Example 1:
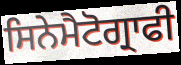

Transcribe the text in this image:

ਸਿਨੇਮੈਟੋਗ੍ਰਾਫੀ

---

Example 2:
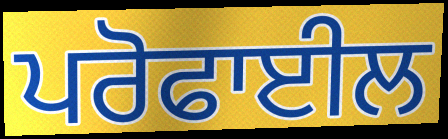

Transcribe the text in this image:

ਪਰੋਫਾਈਲ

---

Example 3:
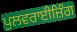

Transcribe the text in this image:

ਪੁਲਵਰਾਈਜ਼ਿੰਗ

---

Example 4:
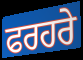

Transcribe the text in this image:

ਫਰਹਰੇ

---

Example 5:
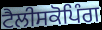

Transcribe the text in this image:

ਟੈਲੀਸਕੋਪਿੰਗ